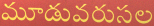
మూడువరుసల